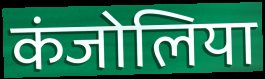
कंजोलिया